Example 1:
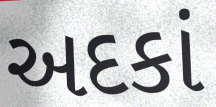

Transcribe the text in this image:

અદકાં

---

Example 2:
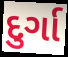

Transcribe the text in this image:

દુર્ગા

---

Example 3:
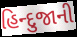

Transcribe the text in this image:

હિન્દુજાની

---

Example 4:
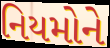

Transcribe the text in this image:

નિયમોને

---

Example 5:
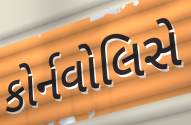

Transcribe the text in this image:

કોર્નવોલિસે